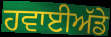
ਹਵਾਈਅੱਡੇ